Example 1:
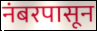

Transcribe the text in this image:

नंबरपासून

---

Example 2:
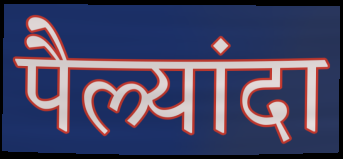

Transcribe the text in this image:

पैल्यांदा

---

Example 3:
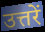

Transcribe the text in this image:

उत्तरें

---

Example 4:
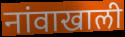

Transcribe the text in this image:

नांवाखाली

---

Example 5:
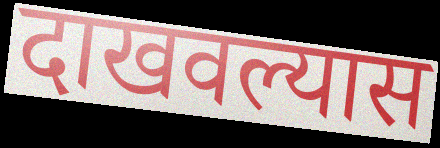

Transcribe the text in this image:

दाखवल्यास